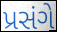
પ્રસંગે